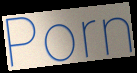
Porn